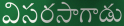
విసరసాగాడు